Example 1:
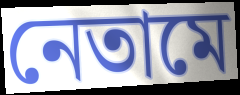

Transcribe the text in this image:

নেতামে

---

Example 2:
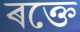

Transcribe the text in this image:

ৰক্তে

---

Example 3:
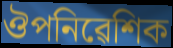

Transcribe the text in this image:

ঔপনিৱেশিক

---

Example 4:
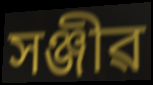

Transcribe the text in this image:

সঞ্জীৱ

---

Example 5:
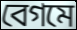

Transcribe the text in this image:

বেগমে